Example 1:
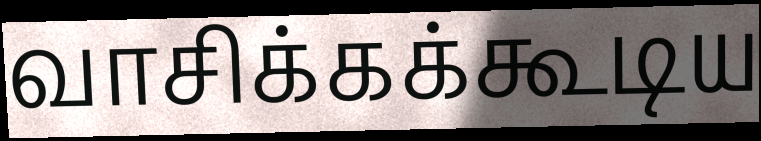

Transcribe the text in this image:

வாசிக்கக்கூடிய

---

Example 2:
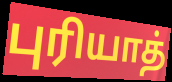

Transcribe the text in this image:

புரியாத்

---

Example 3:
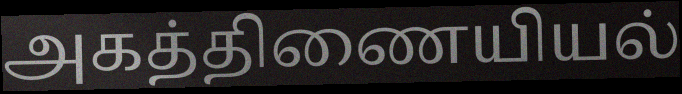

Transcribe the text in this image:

அகத்திணையியல்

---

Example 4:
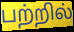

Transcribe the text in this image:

பற்றில்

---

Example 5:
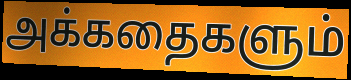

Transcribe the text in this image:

அக்கதைகளும்